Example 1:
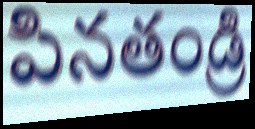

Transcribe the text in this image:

పినతండ్రి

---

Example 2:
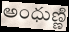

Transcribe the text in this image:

అంధుణ్ణి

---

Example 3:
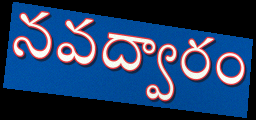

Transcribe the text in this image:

నవద్వారం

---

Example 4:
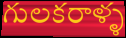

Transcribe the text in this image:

గులకరాళ్ళ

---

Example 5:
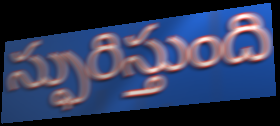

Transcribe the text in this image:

స్ఫురిస్తుంది